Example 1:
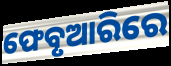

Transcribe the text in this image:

ଫେବୃଆରିରେ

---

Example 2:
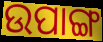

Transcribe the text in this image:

ଉପାଙ୍ଗ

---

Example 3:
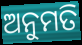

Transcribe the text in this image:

ଅନୁମତି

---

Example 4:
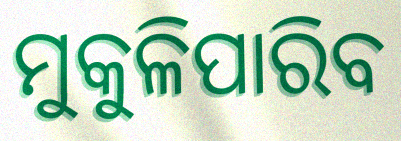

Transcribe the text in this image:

ମୁକୁଳିପାରିବ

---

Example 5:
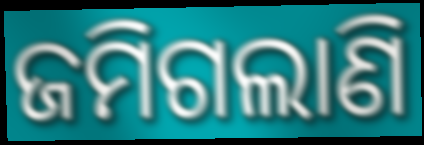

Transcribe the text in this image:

ଜମିଗଲାଣି